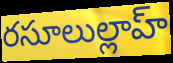
రసూలుల్లాహ్